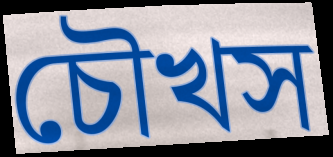
চৌখস